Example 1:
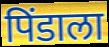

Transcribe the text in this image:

पिंडाला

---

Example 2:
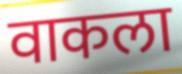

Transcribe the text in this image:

वाकला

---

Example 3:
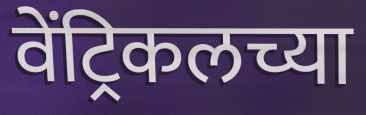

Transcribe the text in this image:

वेंट्रिकलच्या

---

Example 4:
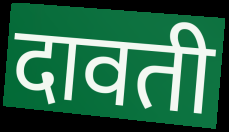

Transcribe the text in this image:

दावती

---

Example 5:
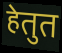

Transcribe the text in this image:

हेतुत